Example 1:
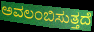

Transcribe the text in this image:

ಅವಲಂಬಿಸುತ್ತದೆ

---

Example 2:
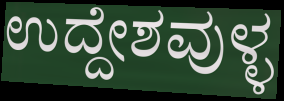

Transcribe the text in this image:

ಉದ್ದೇಶವುಳ್ಳ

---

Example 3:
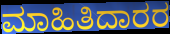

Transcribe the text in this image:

ಮಾಹಿತಿದಾರರ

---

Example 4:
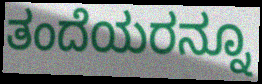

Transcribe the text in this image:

ತಂದೆಯರನ್ನೂ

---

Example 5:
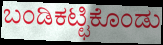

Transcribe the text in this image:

ಬಂಡಿಕಟ್ಟಿಕೊಂಡು